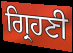
ਗ੍ਰਿਹਣੀ